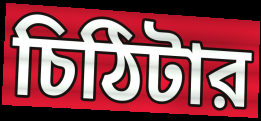
চিঠিটার